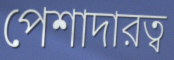
পেশাদারত্ব